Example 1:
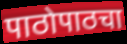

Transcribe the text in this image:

पाठोपाठचा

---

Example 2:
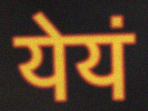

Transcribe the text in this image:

येयं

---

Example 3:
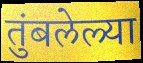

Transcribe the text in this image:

तुंबलेल्या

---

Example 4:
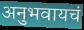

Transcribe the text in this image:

अनुभवायचं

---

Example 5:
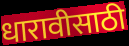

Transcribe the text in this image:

धारावीसाठी